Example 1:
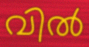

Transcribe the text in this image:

വിൽ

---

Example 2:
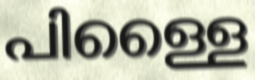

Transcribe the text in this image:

പിള്ളൈ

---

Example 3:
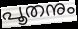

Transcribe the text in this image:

പൂതനും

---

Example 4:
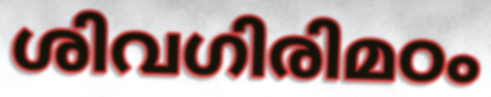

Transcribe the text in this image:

ശിവഗിരിമഠം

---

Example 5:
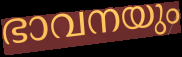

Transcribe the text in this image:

ഭാവനയും